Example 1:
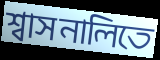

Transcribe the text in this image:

শ্বাসনালিতে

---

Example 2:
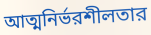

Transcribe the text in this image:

আত্মনির্ভরশীলতার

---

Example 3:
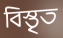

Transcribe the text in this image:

বিস্তৃত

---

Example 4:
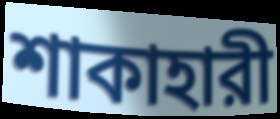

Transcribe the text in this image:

শাকাহারী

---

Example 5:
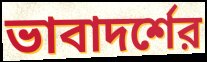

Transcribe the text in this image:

ভাবাদর্শের